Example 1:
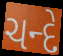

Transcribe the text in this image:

ચન્દે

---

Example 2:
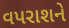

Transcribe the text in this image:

વપરાશને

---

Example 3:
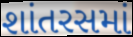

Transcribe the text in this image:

શાંતરસમાં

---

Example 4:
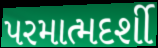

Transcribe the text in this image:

પરમાત્મદર્શી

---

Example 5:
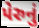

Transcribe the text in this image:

પેરુનું